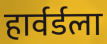
हार्वर्डला